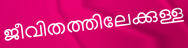
ജീവിതത്തിലേക്കുള്ള